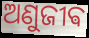
ଅଣୁଜୀଵ